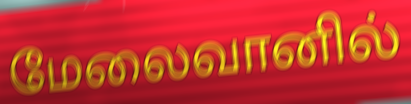
மேலைவானில்